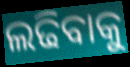
ଲଢିବାକୁ